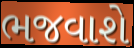
ભજવાશે